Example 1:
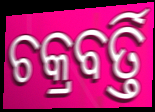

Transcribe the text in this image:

ଚକ୍ରବର୍ତ୍ତି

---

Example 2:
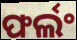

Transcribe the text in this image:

ଫର୍ଲଂ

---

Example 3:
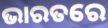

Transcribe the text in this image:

ଭାରତରେ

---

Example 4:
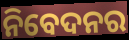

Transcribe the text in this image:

ନିବେଦନର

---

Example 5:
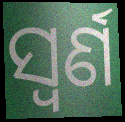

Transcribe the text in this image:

ସ୍ୱର୍ଣ